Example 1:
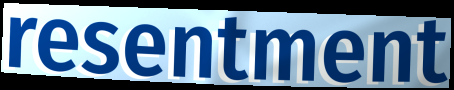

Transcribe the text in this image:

resentment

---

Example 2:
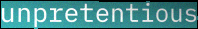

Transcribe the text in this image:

unpretentious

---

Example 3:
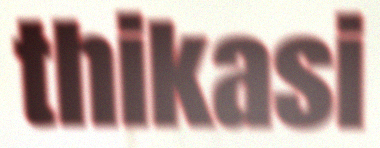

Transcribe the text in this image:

thikasi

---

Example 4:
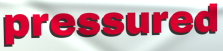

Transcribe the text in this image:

pressured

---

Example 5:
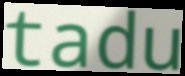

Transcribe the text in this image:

tadu